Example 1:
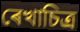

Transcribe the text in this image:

ৰেখাচিত্ৰ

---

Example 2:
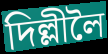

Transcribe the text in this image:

দিল্লীলৈ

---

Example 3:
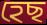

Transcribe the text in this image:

হেছ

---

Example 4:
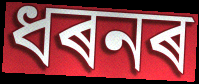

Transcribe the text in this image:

ধৰনৰ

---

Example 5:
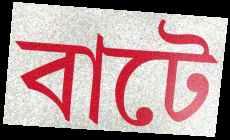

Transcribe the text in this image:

বাটে